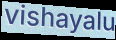
vishayalu